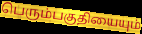
பெரும்பகுதியையும்